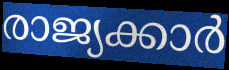
രാജ്യക്കാർ